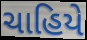
ચાહિયે